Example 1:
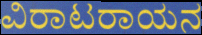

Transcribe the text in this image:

ವಿರಾಟರಾಯನ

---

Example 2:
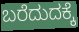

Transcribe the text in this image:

ಬರೆದುದಕ್ಕೆ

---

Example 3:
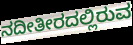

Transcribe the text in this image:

ನದೀತೀರದಲ್ಲಿರುವ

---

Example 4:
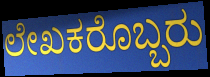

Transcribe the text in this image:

ಲೇಖಕರೊಬ್ಬರು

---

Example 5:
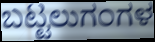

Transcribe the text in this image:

ಬಟ್ಟಲುಗಂಗಳ